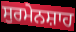
ਸੁਰਮੇਨਸ਼ਾਹ